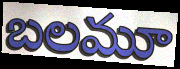
బలమూ